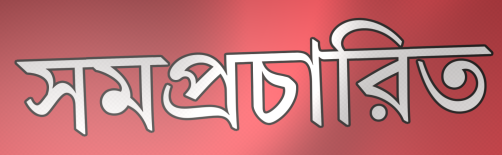
সমপ্রচারিত